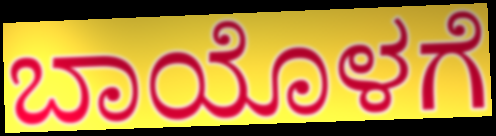
ಬಾಯೊಳಗೆ